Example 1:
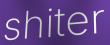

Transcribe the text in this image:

shiter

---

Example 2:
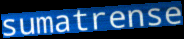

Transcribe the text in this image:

sumatrense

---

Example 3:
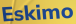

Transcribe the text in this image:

Eskimo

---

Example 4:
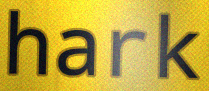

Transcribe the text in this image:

hark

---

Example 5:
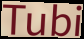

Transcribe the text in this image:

Tubi